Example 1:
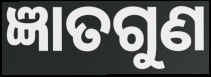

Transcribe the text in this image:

ଜ୍ଞାତଗୁଣ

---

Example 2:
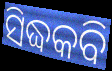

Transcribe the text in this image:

ସିଦ୍ଧକବି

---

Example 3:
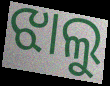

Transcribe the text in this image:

ଝାଲୁ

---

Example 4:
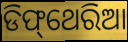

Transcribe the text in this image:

ଡିଫ୍‌ଥେରିଆ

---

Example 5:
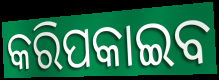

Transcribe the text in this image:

କରିପକାଇବ